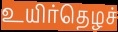
உயிர்தெழச்